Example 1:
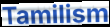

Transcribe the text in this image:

Tamilism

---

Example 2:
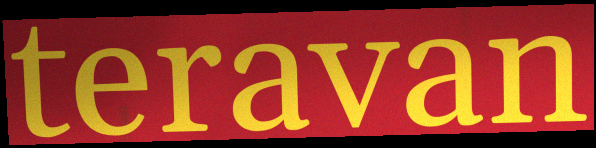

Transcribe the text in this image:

teravan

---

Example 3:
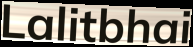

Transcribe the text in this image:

Lalitbhai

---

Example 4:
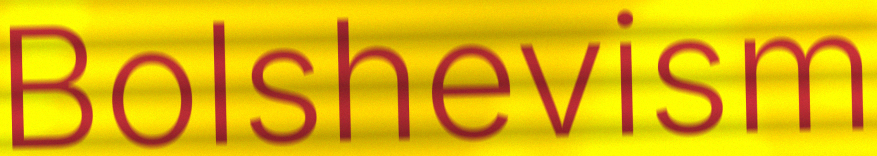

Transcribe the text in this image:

Bolshevism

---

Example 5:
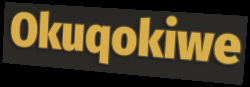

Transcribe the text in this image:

Okuqokiwe